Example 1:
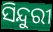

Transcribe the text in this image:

ସିନ୍ଦୁରୀ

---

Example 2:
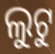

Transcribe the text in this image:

ଲୁଟୁ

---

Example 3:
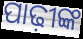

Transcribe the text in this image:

ପାଢ଼ୀଙ୍କ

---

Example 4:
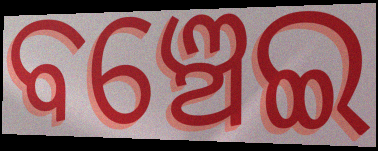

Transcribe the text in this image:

ବଞ୍ଚେଇ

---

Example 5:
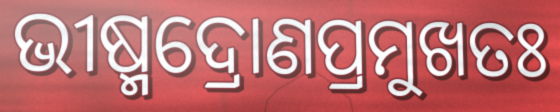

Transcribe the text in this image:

ଭୀଷ୍ମଦ୍ରୋଣପ୍ରମୁଖତଃ